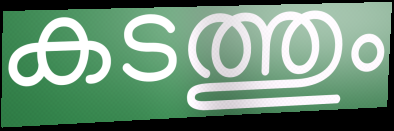
കടത്തും